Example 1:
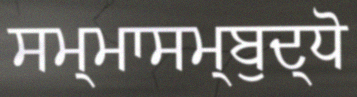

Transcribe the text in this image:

ਸਮ੍ਮਾਸਮ੍ਬੁਦ੍ਧੋ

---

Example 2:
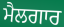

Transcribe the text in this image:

ਮੈਲਗਾਰ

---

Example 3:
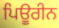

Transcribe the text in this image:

ਪਿਊਰੀਨ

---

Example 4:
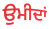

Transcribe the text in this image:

ਉਮੀਦਾਂ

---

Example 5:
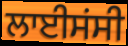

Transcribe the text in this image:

ਲਾਈਸਂਸੀ